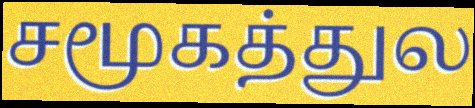
சமூகத்துல